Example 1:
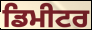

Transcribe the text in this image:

ਡਿਮੀਟਰ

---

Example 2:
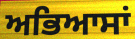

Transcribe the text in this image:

ਅਭਿਆਸਾਂ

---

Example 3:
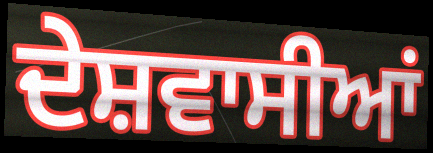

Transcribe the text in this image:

ਦੇਸ਼ਵਾਸੀਆਂ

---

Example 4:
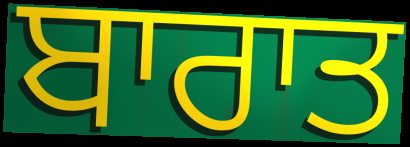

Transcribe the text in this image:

ਬਾਰਾਤ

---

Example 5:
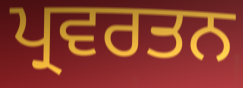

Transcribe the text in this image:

ਪ੍ਰਵਰਤਨ